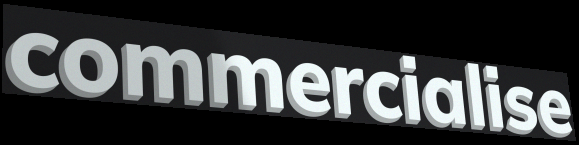
commercialise